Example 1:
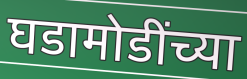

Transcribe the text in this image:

घडामोडींच्या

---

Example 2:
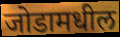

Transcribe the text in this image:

जोडामधील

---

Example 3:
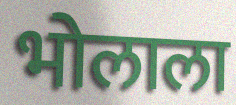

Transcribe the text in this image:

भोलाला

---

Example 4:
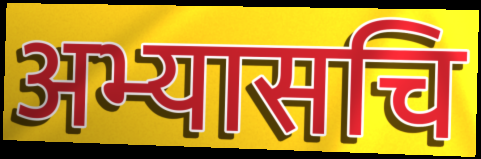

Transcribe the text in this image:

अभ्यासचि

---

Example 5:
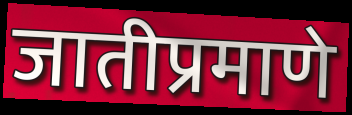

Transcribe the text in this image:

जातीप्रमाणे